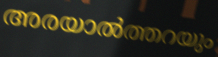
അരയാൽത്തറയും